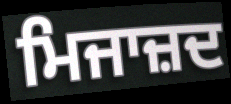
ਮਿਜਾਜ਼ਦ